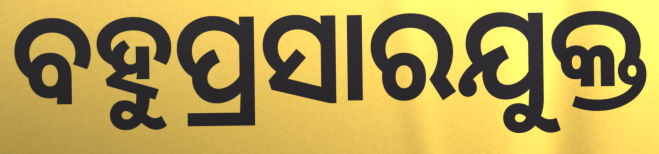
ବହୁପ୍ରସାରଯୁକ୍ତ